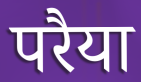
परैया